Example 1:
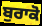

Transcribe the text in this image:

ਬੁਰਾਕੋ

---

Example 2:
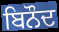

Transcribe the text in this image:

ਬਿਨੌਦ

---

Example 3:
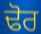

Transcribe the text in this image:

ਢੋਰ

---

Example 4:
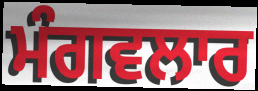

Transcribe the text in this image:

ਮੰਗਵਲਾਰ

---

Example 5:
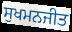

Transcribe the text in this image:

ਸੁਖਮਨਜੀਤ